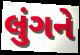
લુંગને